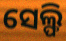
ସେଲ୍ଫି